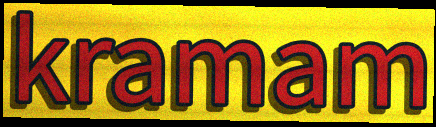
kramam